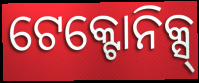
ଟେକ୍ଟୋନିକ୍ସ୍